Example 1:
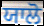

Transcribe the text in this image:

ਯਾਲੋ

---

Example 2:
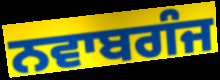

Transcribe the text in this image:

ਨਵਾਬਗੰਜ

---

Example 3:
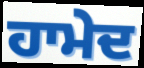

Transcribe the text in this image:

ਹਾਮੇਦ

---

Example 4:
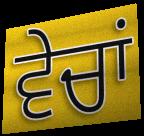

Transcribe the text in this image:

ਵੇਚਾਂ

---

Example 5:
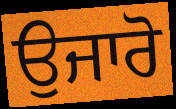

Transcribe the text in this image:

ਉਜਾਰੋ